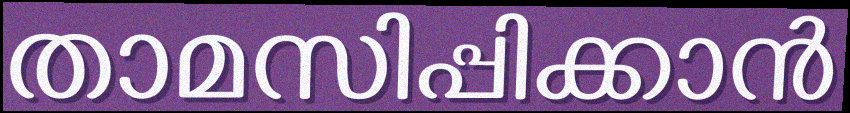
താമസിപ്പിക്കാൻ